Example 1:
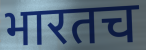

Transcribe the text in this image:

भारतच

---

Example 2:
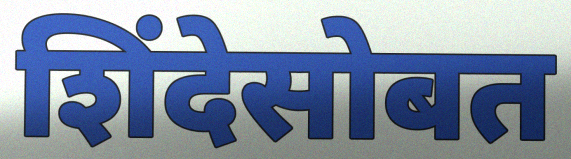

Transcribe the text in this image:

शिंदेसोबत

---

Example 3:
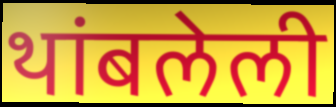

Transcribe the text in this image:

थांबलेली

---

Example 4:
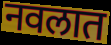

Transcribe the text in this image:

नवलात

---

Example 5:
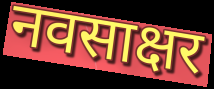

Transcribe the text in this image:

नवसाक्षर